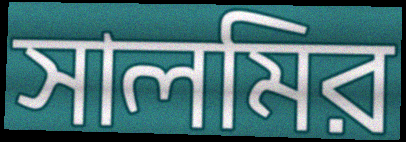
সালমির